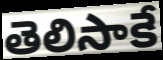
తెలిసాకే